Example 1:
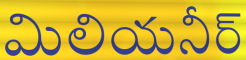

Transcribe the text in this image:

మిలియనీర్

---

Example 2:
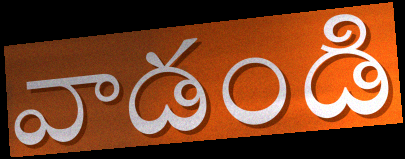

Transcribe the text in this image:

వాడండి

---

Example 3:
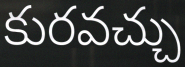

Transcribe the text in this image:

కురవచ్చు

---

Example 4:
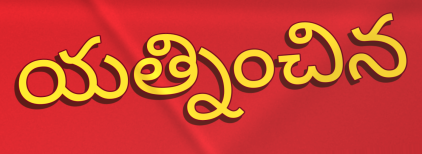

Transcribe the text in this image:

యత్నించిన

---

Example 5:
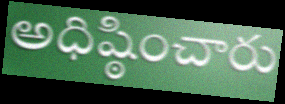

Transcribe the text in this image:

అధిష్ఠించారు